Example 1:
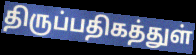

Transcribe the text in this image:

திருப்பதிகத்துள்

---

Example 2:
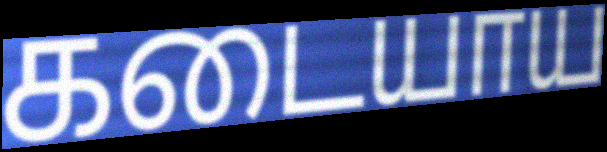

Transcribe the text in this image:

கடையாய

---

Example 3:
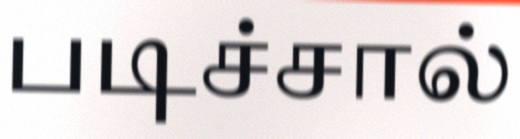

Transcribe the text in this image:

படிச்சால்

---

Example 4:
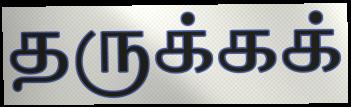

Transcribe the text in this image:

தருக்கக்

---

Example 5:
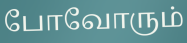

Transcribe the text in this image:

போவோரும்